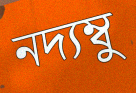
নদ্যম্বু